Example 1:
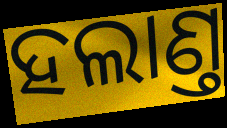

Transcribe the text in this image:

ହଲାଣ୍ତ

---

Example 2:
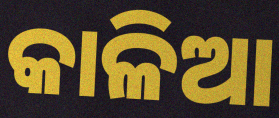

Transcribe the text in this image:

କାଳିଆ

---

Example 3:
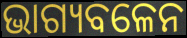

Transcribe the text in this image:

ଭାଗ୍ୟବଳେନ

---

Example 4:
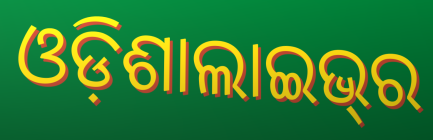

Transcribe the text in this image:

ଓଡ଼ିଶାଲାଇଭ୍‌ର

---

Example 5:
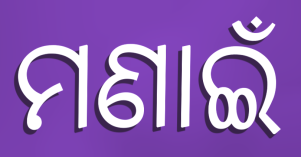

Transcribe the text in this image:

ମଣାଇଁ